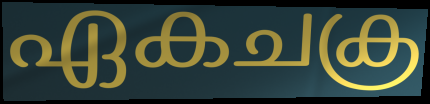
ഏകചക്ര